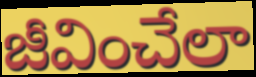
జీవించేలా